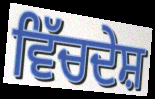
ਵਿੱਚਦੇਸ਼